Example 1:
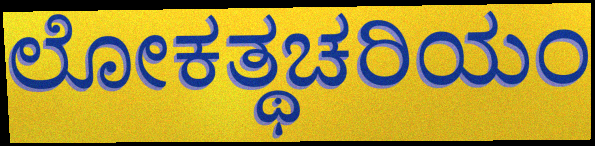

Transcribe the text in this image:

ಲೋಕತ್ಥಚರಿಯಂ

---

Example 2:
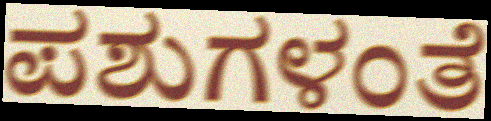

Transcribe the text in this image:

ಪಶುಗಳಂತೆ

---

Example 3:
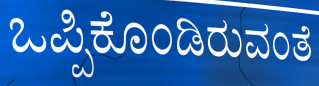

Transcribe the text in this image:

ಒಪ್ಪಿಕೊಂಡಿರುವಂತೆ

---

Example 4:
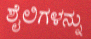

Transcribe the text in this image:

ಶೈಲಿಗಳನ್ನು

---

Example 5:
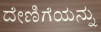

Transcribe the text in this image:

ದೇಣಿಗೆಯನ್ನು